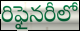
రిఫైనరీలో